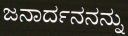
ಜನಾರ್ದನನನ್ನು